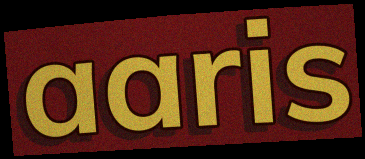
aaris